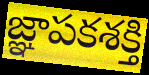
జ్ఞాపకశక్తి